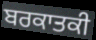
ਬਰਕਾਤਕੀ